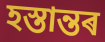
হস্তান্তৰ